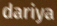
dariya